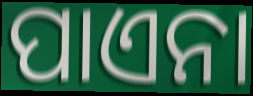
ପାଏନା